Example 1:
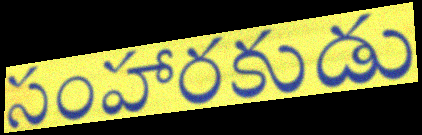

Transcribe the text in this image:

సంహారకుడు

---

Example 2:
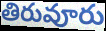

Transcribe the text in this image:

తిరువూరు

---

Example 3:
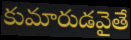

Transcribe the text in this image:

కుమారుడవైతే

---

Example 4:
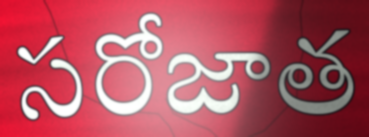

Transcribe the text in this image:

సరోజాత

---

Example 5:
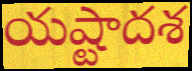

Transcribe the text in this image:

యష్టాదశ